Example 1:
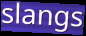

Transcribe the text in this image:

slangs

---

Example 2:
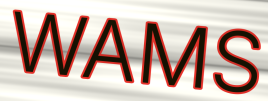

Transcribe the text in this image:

WAMS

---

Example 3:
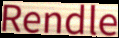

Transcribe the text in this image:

Rendle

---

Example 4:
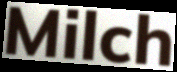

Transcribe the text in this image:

Milch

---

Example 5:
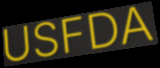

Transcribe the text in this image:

USFDA